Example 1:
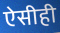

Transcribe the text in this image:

ऐसीही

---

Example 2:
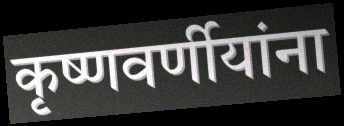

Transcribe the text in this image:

कृष्णवर्णीयांना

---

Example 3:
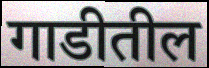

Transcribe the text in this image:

गाडीतील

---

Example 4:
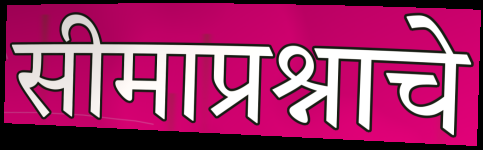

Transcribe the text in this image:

सीमाप्रश्नाचे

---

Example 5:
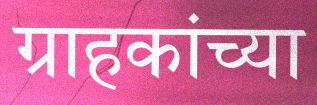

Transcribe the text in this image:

ग्राहकांच्या